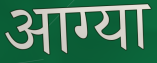
आग्या